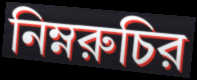
নিম্নরুচির